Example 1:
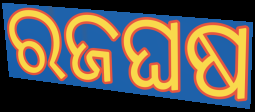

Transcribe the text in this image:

ରଜଘଷ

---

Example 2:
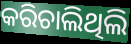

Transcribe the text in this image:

କରିଚାଲିଥିଲି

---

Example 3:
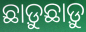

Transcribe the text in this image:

ଛାଡ଼ୁଛାଡ଼ୁ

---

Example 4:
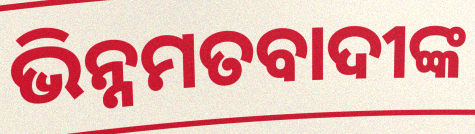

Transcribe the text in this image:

ଭିନ୍ନମତବାଦୀଙ୍କ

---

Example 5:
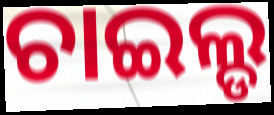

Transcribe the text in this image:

ଚାଇଲ୍ଡ